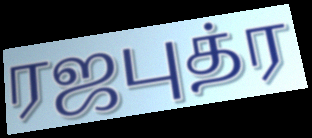
ரஜபுத்ர